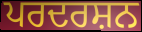
ਪਰਦਰਸ਼ਨ